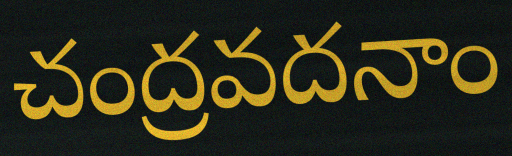
చంద్రవదనాం